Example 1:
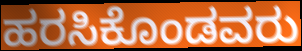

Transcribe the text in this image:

ಹರಸಿಕೊಂಡವರು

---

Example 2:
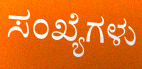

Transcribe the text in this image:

ಸಂಖ್ಯೆಗಳು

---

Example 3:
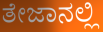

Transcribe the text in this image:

ತೇಜಾನಲ್ಲಿ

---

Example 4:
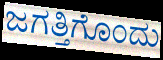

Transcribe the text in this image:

ಜಗತ್ತಿಗೊಂದು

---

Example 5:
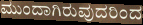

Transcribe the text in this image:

ಮುಂದಾಗಿರುವುದರಿಂದ